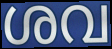
ശവ